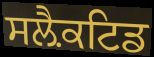
ਸਲ਼ੈਕਟਿਡ